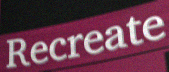
Recreate